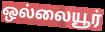
ஒல்லையூர்